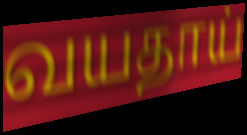
வயதாய்